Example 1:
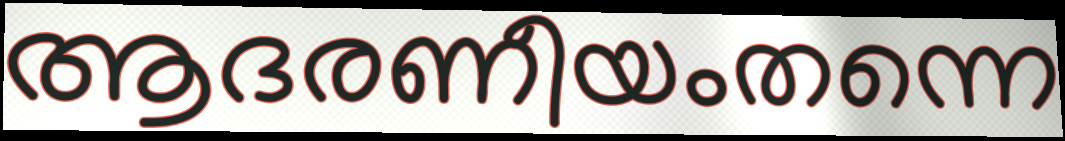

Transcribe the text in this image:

ആദരണീയംതന്നെ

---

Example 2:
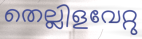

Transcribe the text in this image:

തെല്ലിളവേറ്റു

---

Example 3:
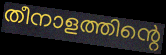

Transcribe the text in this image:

തീനാളത്തിന്റെ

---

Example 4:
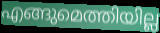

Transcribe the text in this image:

എങ്ങുമെത്തിയില്ല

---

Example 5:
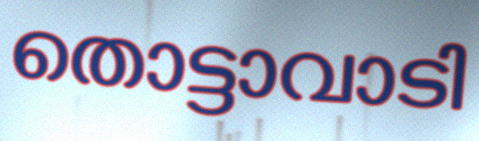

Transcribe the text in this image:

തൊട്ടാവാടി